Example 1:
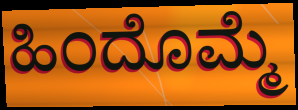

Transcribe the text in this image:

ಹಿಂದೊಮ್ಮೆ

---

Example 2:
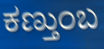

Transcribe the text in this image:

ಕಣ್ತುಂಬ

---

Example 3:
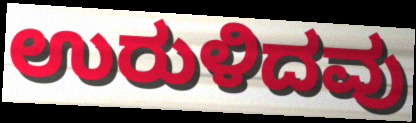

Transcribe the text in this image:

ಉರುಳಿದವು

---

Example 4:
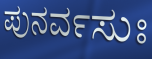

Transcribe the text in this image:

ಪುನರ್ವಸುಃ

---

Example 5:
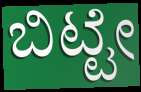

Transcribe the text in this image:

ಬಿಟ್ಟೇ